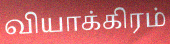
வியாக்கிரம்